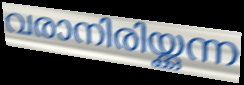
വരാനിരിയ്ക്കുന്ന